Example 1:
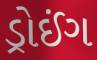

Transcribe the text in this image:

ડ્રોઈંગ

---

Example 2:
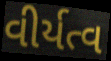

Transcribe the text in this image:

વીર્યત્વ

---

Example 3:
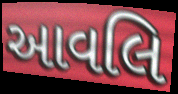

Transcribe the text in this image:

આવલિ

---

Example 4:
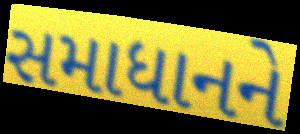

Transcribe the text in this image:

સમાધાનને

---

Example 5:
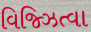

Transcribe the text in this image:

વિજ્ઝિત્વા